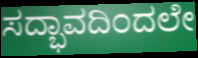
ಸದ್ಭಾವದಿಂದಲೇ